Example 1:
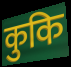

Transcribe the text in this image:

कुकि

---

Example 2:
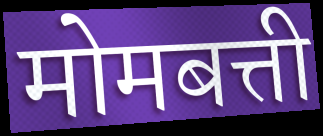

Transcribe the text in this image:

मोमबत्ती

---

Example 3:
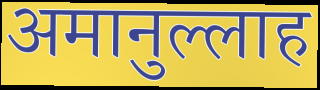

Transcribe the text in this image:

अमानुल्लाह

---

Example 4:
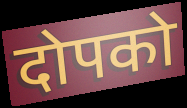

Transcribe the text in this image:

दोपको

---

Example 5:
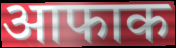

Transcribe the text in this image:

आफाक